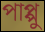
পাপ্পু